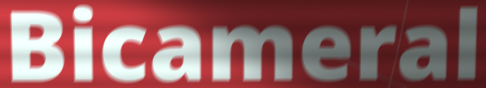
Bicameral